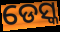
ଡେସ୍କ